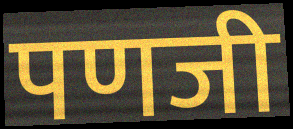
पणजी